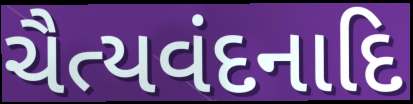
ચૈત્યવંદનાદિ